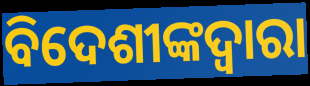
ବିଦେଶୀଙ୍କଦ୍ୱାରା